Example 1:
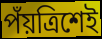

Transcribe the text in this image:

পঁয়ত্রিশেই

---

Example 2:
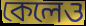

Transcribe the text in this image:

কেলেও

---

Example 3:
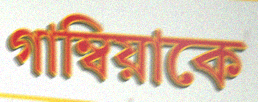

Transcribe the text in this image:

গাম্বিয়াকে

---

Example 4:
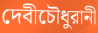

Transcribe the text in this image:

দেবীচৌধুরানী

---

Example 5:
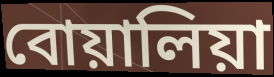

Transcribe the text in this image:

বোয়ালিয়া